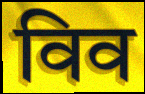
विव